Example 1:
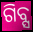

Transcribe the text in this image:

ଗିବ୍ସ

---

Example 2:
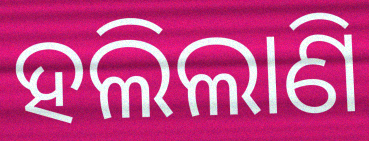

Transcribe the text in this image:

ହଲିଲାଣି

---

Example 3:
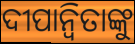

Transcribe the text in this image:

ଦୀପାନ୍ୱିତାଙ୍କୁ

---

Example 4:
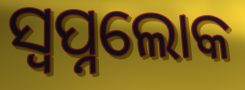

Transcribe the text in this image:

ସ୍ୱପ୍ନଲୋକ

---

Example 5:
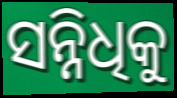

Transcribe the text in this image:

ସନ୍ନିଧିକୁ